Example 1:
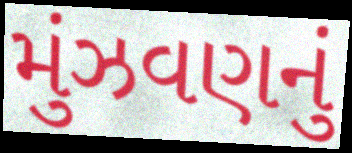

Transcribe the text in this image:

મુંઝવણનું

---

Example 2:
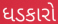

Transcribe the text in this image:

ધડકારો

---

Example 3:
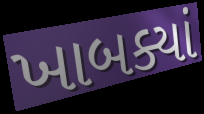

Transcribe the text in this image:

ખાબક્યાં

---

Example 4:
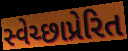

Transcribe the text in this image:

સ્વેચ્છાપ્રેરિત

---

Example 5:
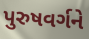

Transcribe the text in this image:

પુરુષવર્ગને